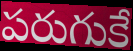
పరుగుకే